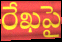
రేఖపై